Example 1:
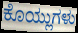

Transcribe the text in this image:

ಕೊಯ್ಲುಗಳು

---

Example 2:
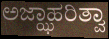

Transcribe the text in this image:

ಅಜ್ಝಾಹರಿತ್ವಾ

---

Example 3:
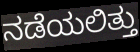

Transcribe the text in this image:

ನಡೆಯಲಿತ್ತು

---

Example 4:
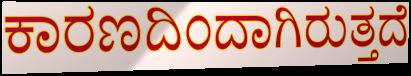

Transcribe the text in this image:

ಕಾರಣದಿಂದಾಗಿರುತ್ತದೆ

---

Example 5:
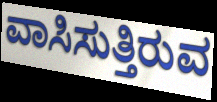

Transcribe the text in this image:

ವಾಸಿಸುತ್ತಿರುವ